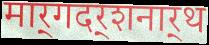
मार्गदर्शनार्थ